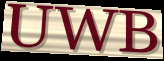
UWB